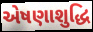
એષણાશુદ્ધિ